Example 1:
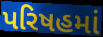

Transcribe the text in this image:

પરિષહમાં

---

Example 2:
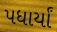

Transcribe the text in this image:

પધાર્યાં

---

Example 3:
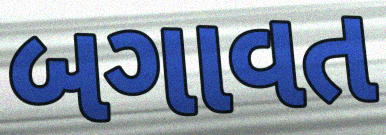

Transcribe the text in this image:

બગાવત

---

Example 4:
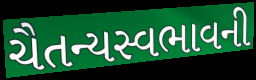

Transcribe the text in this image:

ચૈતન્યસ્વભાવની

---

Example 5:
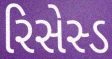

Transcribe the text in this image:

રિસેસ્ડ